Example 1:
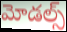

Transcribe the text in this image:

మోడల్స్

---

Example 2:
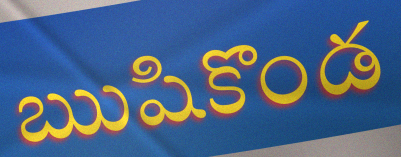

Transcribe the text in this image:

ఋషికొండ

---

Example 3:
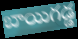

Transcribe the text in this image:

బాయిగడ్డ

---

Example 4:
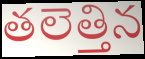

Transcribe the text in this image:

తలెత్తిన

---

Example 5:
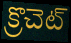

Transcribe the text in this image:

క్రొచెట్